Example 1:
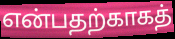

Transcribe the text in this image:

என்பதற்காகத்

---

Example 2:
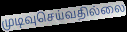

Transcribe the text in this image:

முடிவுசெய்வதில்லை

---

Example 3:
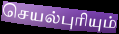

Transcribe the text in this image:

செயல்புரியும்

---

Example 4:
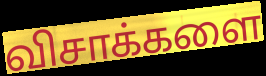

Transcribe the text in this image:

விசாக்களை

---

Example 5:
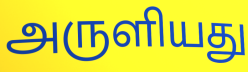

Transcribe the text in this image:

அருளியது